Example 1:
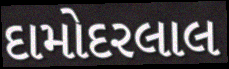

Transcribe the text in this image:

દામોદરલાલ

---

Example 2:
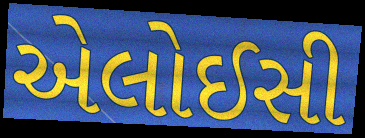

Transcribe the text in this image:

એલોઈસી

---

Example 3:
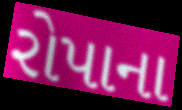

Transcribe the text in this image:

રોપાના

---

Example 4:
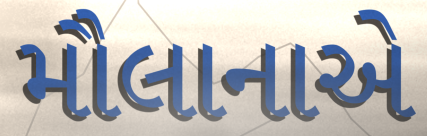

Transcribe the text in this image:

મૌલાનાએ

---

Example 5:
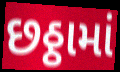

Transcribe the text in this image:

છઠ્ઠામાં